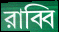
রাব্বি